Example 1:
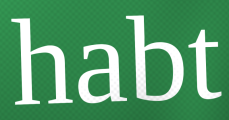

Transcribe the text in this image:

habt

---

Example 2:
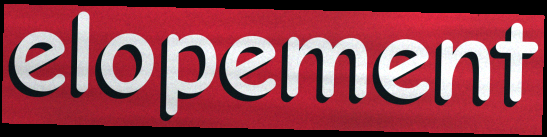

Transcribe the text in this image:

elopement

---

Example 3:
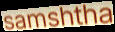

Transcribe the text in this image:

samshtha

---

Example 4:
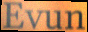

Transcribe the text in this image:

Evun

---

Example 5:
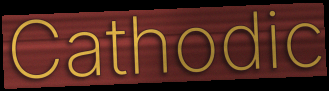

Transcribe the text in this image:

Cathodic